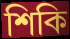
শিকি